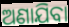
ଅଣାଯିବା